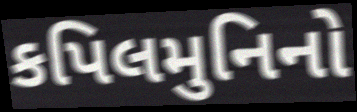
કપિલમુનિનો